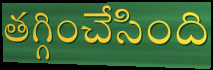
తగ్గించేసింది